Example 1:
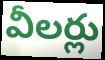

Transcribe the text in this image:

వీలర్లు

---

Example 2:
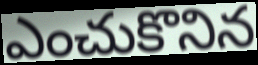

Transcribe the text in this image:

ఎంచుకొనిన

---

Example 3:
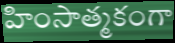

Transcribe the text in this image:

హింసాత్మకంగా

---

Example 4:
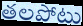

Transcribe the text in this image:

తలపోటు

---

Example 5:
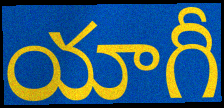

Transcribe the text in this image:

యాగీ